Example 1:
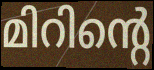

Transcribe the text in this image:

മിറിന്റെ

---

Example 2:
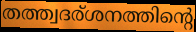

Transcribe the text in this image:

തത്ത്വദര്ശനത്തിന്റെ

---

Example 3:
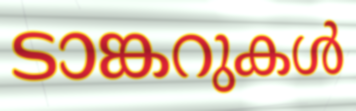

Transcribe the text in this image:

ടാങ്കറുകൾ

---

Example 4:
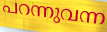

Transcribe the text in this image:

പറന്നുവന്ന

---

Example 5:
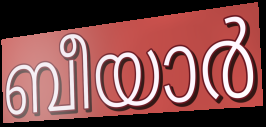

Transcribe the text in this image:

ബീയാർ